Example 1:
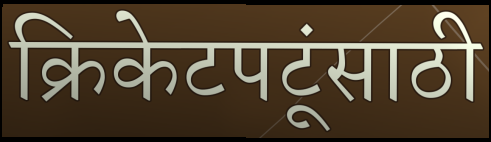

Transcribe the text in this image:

क्रिकेटपटूंसाठी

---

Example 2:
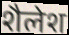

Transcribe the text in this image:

शैलेश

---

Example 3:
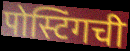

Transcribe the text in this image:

पोस्टिंगची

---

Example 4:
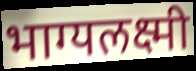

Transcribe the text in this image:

भाग्यलक्ष्मी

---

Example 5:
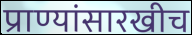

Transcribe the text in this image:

प्राण्यांसारखीच